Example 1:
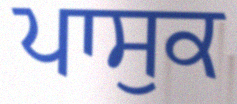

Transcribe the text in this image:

ਪਾਸੁਕ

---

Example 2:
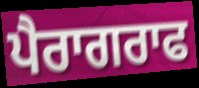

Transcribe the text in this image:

ਪੈਰਾਗਰਾਫ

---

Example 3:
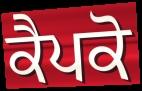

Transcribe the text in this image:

ਕੈਪਕੋ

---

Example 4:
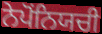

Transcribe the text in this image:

ਨੇਪੋਂਨਿਯਚੀ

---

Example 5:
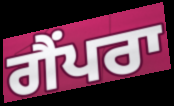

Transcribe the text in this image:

ਗੈਂਪਰਾ